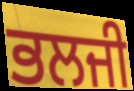
ਭਲਜੀ